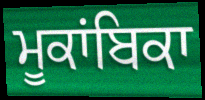
ਮੂਕਾਂਬਿਕਾ